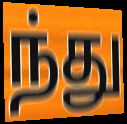
ந்து